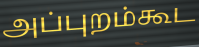
அப்புறம்கூட